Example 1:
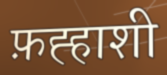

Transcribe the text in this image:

फ़ह्हाशी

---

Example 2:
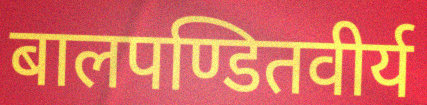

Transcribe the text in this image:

बालपण्डितवीर्य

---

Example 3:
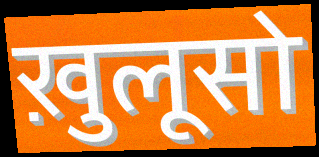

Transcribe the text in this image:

ख़ुलूसो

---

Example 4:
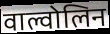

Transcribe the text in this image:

वाल्वोलिन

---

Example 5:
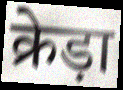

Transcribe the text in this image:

क्रेड़ा